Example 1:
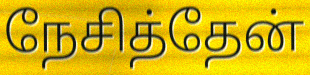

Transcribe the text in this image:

நேசித்தேன்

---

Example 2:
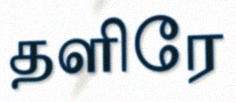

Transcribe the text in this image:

தளிரே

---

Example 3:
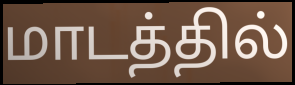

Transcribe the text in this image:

மாடத்தில்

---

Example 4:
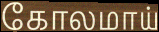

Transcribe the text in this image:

கோலமாய்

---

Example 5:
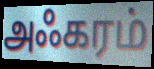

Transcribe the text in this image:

அஃகரம்